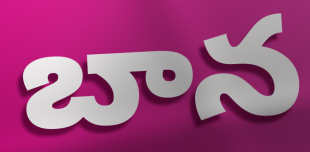
బాన